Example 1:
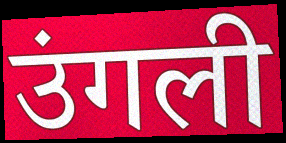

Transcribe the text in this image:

उंगली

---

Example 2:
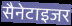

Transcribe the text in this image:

सैनेटाइजर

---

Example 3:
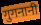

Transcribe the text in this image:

गुगनानी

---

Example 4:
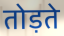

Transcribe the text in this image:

तोड़ते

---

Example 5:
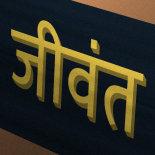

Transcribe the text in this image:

जीवंत